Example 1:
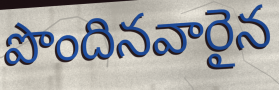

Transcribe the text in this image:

పొందినవారైన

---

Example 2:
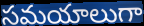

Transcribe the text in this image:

సమయాలుగా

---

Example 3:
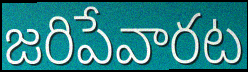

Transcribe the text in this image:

జరిపేవారట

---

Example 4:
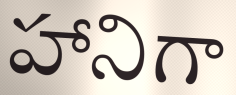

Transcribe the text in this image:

హానిగా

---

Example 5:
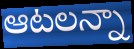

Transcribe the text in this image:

ఆటలన్నా